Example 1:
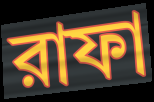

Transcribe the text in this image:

রাফা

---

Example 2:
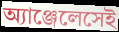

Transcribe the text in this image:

অ্যাঞ্জেলেসেই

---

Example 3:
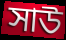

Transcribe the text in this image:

সাউ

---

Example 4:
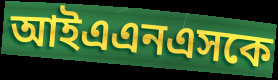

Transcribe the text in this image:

আইএএনএসকে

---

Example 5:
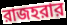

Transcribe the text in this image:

রাজহরার